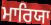
ਮਾਰਿਯਾ